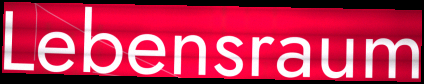
Lebensraum